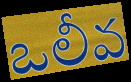
ఒలీవ